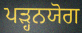
ਪੜ੍ਹਨਯੋਗ